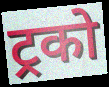
ट्रको